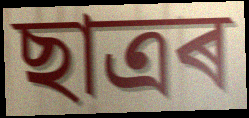
ছাত্ৰৰ